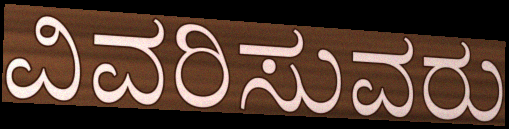
ವಿವರಿಸುವರು